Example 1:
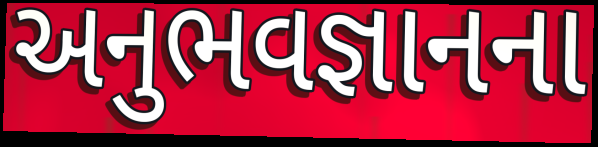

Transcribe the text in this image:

અનુભવજ્ઞાનના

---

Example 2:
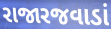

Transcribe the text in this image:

રાજારજવાડાં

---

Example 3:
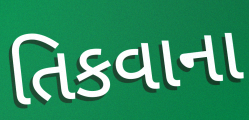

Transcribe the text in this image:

તિકવાના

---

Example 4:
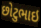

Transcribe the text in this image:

છોટુભાઇ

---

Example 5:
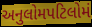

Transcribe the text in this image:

અનુલોમપટિલોમં